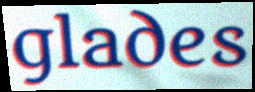
glades